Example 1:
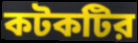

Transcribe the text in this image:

কটকটির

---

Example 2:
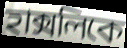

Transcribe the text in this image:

হাক্সলিকে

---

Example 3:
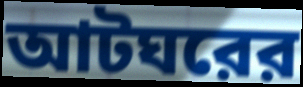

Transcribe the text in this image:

আটঘরের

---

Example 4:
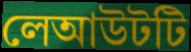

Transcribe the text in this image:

লেআউটটি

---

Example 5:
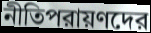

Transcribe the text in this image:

নীতিপরায়ণদের